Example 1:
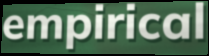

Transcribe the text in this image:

empirical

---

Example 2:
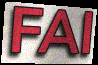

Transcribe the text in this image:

FAI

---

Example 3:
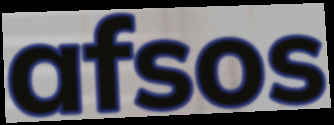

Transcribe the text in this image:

afsos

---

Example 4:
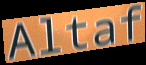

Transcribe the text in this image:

Altaf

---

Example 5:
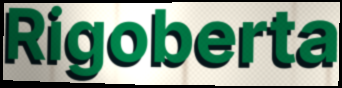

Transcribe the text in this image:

Rigoberta